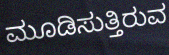
ಮೂಡಿಸುತ್ತಿರುವ